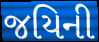
જયિની